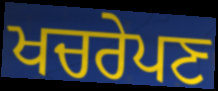
ਖਚਰੇਪਣ